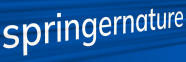
springernature